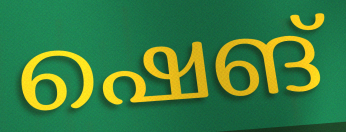
ഷെങ്